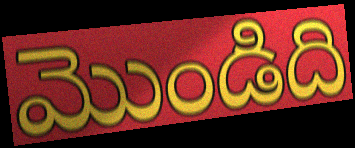
మొండిది